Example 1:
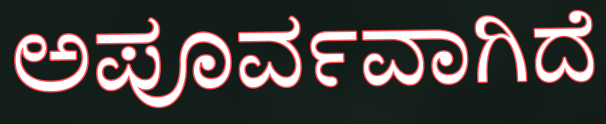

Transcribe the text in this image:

ಅಪೂರ್ವವಾಗಿದೆ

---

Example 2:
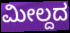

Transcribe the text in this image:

ಮೀಲ್ದದ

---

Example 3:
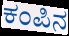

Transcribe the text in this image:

ಕಂಪಿನ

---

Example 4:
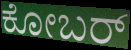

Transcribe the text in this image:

ಕೋಬರ್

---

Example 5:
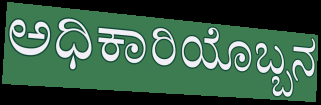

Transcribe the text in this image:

ಅಧಿಕಾರಿಯೊಬ್ಬನ